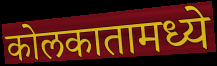
कोलकातामध्ये